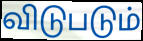
விடுபடும்